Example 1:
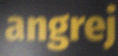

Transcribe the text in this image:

angrej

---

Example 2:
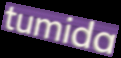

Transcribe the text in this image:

tumida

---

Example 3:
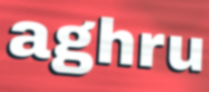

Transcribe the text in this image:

aghru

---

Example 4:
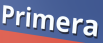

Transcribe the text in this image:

Primera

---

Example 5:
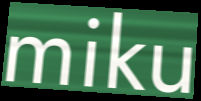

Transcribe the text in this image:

miku